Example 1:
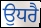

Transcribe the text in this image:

ਉਧਰੈ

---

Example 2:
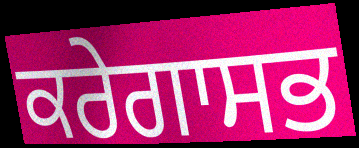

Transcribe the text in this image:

ਕਰੇਗਾਸਭ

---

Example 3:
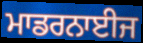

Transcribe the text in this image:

ਮਾਡਰਨਾਈਜ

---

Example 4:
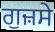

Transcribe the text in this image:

ਗੁਜ਼ਸੇ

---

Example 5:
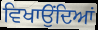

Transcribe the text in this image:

ਵਿਖਾਉਂਦਿਆਂ